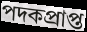
পদকপ্রাপ্ত